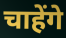
चाहेंगे